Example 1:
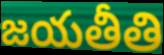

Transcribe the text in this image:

జయతీతి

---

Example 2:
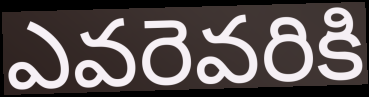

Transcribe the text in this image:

ఎవరెవరికి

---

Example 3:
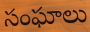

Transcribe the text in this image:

సంఘాలు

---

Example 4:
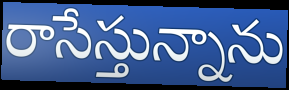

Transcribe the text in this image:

రాసేస్తున్నాను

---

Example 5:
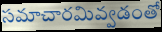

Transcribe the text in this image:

సమాచారమివ్వడంతో